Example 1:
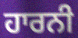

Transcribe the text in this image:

ਹਾਰਨੀ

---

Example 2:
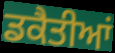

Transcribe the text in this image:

ਡਕੈਤੀਆਂ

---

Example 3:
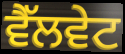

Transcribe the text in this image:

ਵੈੱਲਵੇਟ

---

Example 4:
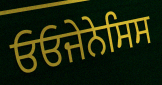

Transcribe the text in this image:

ਓਓਜੇਨੇਸਿਸ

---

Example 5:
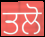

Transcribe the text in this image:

ਤਲੋ